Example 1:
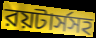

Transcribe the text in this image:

রয়টার্সসহ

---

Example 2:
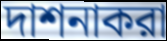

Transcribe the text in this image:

দাশনাকরা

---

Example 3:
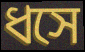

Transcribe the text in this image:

ধসে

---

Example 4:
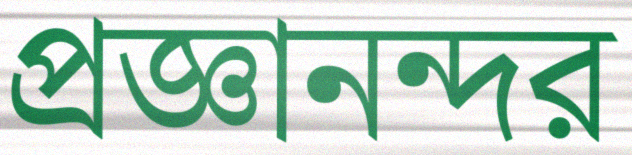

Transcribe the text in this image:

প্রজ্ঞানন্দর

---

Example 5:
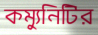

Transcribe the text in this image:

কম্যুনিটির